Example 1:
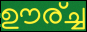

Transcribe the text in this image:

ഊര്ച്ച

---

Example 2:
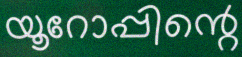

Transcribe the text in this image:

യൂറോപ്പിന്റെ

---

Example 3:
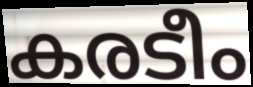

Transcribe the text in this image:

കരടീം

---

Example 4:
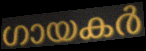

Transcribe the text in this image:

ഗായകർ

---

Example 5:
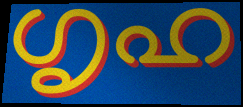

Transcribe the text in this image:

ഗൃഹ